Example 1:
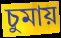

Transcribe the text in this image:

চুমায়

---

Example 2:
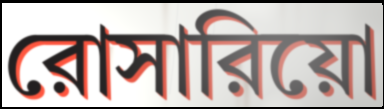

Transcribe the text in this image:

রোসারিয়ো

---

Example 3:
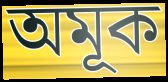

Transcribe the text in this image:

অমূক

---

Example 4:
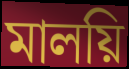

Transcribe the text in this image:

মালয়ি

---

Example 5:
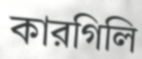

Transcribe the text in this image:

কারগিলি